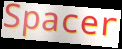
Spacer